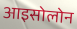
आइसोलोन